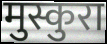
मुस्कुरा